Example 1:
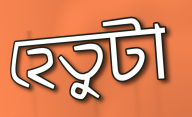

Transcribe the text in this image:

হেতুটা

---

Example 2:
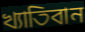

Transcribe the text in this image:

খ্যাতিবান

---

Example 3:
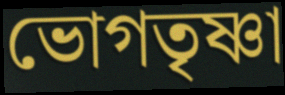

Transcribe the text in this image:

ভোগতৃষ্ণা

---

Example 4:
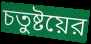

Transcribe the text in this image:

চতুষ্টয়ের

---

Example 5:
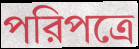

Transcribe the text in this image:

পরিপত্রে